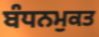
ਬੰਧਨਮੁਕਤ